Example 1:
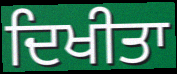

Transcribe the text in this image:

ਦਿਖੀਤਾ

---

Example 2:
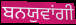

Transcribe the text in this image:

ਬਨਯੁਵਾਂਗੀ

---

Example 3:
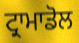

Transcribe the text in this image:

ਟ੍ਰਾਮਾਡੋਲ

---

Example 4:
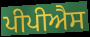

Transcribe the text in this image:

ਪੀਪੀਐਸ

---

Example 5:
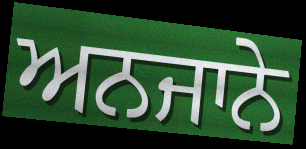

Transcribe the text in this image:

ਅਨਜਾਨੇ